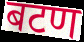
बटण